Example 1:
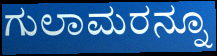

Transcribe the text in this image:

ಗುಲಾಮರನ್ನೂ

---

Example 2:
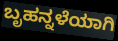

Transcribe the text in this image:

ಬೃಹನ್ನಳೆಯಾಗಿ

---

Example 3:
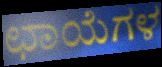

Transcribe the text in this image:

ಛಾಯೆಗಳ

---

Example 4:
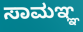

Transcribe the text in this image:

ಸಾಮಞ್ಞ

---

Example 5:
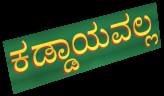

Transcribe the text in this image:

ಕಡ್ಡಾಯವಲ್ಲ